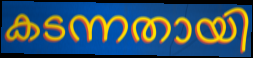
കടന്നതായി